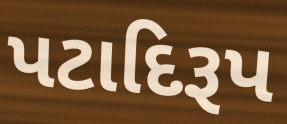
પટાદિરૂપ